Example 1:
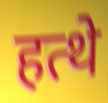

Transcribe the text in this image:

हत्थे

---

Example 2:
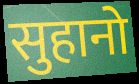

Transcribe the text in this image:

सुहानो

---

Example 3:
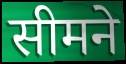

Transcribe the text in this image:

सीमने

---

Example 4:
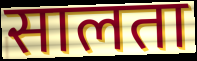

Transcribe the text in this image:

सालता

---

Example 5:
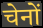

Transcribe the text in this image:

चेनों